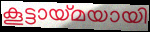
കൂട്ടായ്മയായി